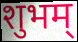
शुभम्